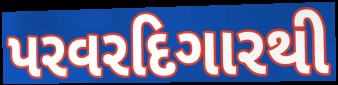
પરવરદિગારથી